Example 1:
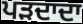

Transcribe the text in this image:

ਪੜਦਾਦਾ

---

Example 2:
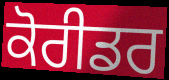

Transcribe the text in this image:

ਕੋਰੀਡਰ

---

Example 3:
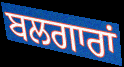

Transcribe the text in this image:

ਬਲਗਾਰਾਂ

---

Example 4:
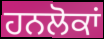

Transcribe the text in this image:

ਹਨਲੋਕਾਂ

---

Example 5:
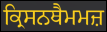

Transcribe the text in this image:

ਕ੍ਰਿਸਨਥੈਮਮਜ਼